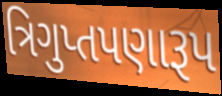
ત્રિગુપ્તપણારૂપ